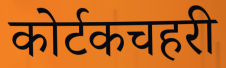
कोर्टकचहरी